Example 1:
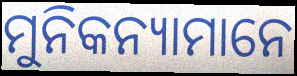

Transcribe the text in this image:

ମୁନିକନ୍ୟାମାନେ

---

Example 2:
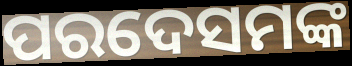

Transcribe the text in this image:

ପରଦେସମଙ୍କ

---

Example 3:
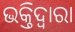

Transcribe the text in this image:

ଭକ୍ତିଦ୍ଵାରା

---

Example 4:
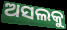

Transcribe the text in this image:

ଅସଲକୁ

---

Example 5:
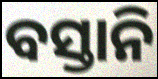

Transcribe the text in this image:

ବସ୍ତାନି